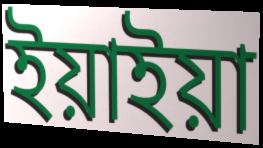
ইয়াইয়া